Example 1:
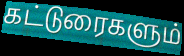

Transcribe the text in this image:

கட்டுரைகளும்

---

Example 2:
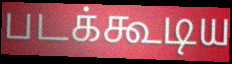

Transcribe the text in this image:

படக்கூடிய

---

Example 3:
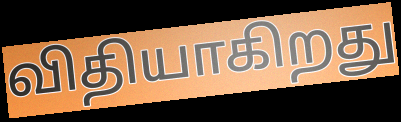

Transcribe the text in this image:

விதியாகிறது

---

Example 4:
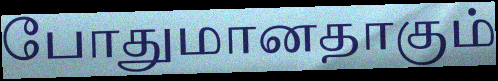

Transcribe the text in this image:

போதுமானதாகும்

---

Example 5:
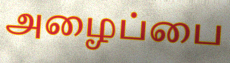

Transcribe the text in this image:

அழைப்பை